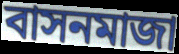
বাসনমাজা